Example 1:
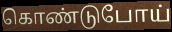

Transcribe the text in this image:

கொண்டுபோய்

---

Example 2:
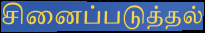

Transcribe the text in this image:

சினைப்படுத்தல்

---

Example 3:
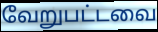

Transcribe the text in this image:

வேறுபட்டவை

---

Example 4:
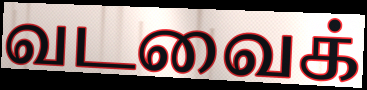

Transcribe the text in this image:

வடவைக்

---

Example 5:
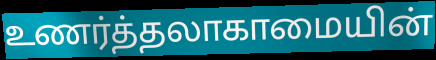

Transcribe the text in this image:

உணர்த்தலாகாமையின்